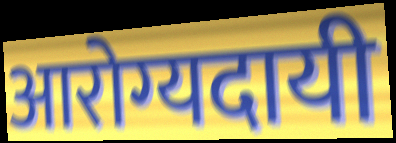
आरोग्यदायी